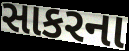
સાકરના